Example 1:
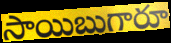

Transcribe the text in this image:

సాయిబుగారూ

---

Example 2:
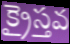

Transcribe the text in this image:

క్రైస్తవ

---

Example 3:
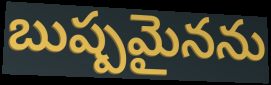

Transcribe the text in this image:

బుష్పమైనను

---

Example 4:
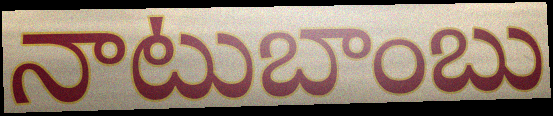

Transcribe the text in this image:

నాటుబాంబు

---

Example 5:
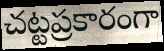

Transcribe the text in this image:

చట్టప్రకారంగా